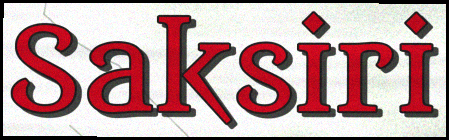
Saksiri